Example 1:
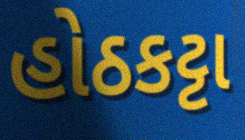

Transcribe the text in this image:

હોઠકટ્ટા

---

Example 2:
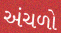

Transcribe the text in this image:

અંચળો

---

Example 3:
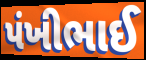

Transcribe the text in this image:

પંખીભાઈ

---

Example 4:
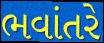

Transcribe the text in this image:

ભવાંતરે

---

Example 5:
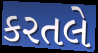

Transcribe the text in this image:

કરતલે